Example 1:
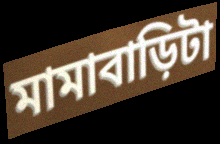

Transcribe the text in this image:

মামাবাড়িটা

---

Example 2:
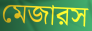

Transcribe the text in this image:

মেজারস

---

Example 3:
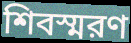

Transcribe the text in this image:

শিবস্মরণ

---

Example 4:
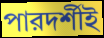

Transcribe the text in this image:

পারদর্শীই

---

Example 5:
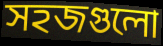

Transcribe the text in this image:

সহজগুলো